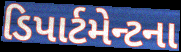
ડિપાર્ટમેન્ટના